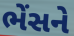
ભેંસને